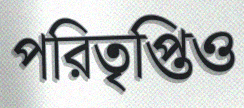
পরিতৃপ্তিও